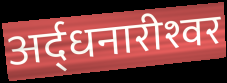
अर्द्धनारीश्वर